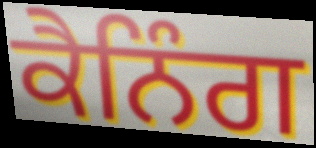
ਕੈਨਿੰਗ